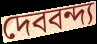
দেববন্দ্য